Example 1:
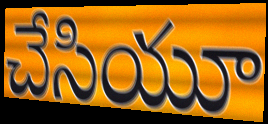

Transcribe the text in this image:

చేసియూ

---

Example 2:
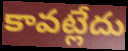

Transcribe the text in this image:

కావట్లేదు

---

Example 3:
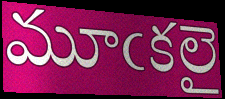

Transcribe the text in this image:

మూఁకలై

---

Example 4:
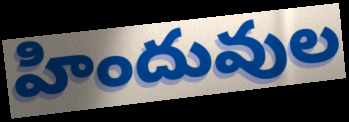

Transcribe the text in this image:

హిందువుల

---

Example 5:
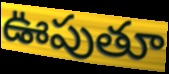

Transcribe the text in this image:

ఊపుతూ